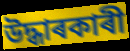
উদ্ধাৰকাৰী